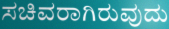
ಸಚಿವರಾಗಿರುವುದು